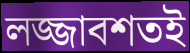
লজ্জাবশতই